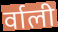
र्वाली